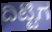
ದಿಟ್ಟಿಗ